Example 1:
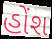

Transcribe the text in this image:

હોંશ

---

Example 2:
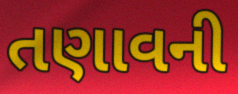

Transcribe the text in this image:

તણાવની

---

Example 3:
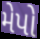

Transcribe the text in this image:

મેપો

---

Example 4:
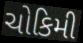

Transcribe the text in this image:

ચોકિમી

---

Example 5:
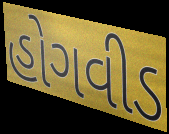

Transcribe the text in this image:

હોગવીડ